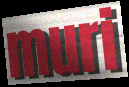
muri